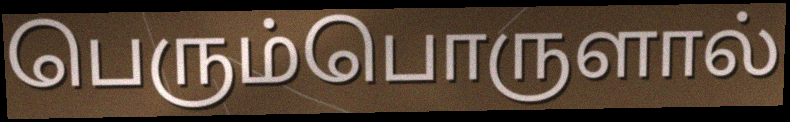
பெரும்பொருளால்